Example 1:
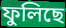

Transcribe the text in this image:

ফুলিছে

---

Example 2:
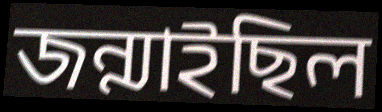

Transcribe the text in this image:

জন্মাইছিল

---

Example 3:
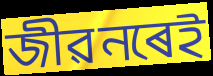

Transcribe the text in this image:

জীৱনৰেই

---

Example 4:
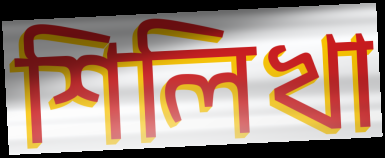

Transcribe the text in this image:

শিলিখা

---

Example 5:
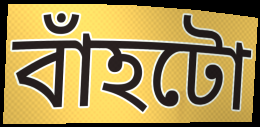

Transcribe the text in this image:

বাঁহটো